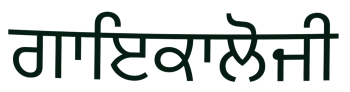
ਗਾਇਕਾਲੋਜੀ